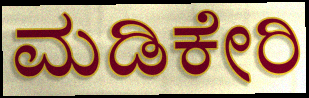
ಮಡಿಕೇರಿ